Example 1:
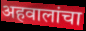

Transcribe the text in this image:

अहवालांचा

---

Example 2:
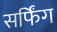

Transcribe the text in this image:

सर्फिंग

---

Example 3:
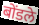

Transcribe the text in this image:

बोंडले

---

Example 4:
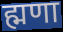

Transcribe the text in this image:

ह्मणा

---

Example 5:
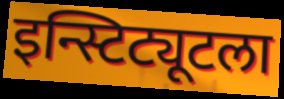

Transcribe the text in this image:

इन्स्टिट्यूटला